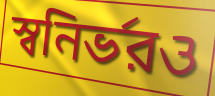
স্বনির্ভরও